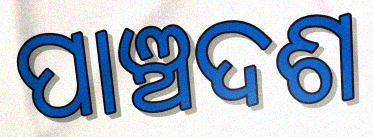
ପାଞ୍ଚଦଶ